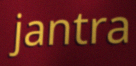
jantra